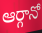
ఆర్గానో